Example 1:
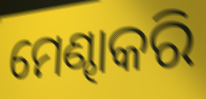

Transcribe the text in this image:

ମେଣ୍ଢାକରି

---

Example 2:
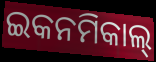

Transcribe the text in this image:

ଇକନମିକାଲ୍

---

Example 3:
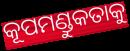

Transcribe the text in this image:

କୂପମଣ୍ଡୁକତାକୁ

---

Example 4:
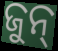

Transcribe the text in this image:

ଜୁନ୍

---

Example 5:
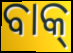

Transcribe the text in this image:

ବାକ୍